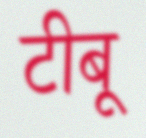
टीबू